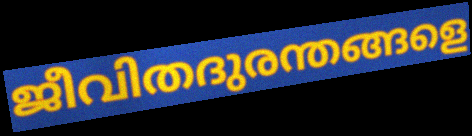
ജീവിതദുരന്തങ്ങളെ